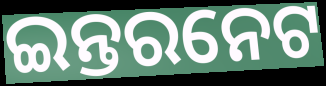
ଇନ୍ତରନେଟ